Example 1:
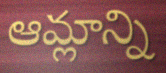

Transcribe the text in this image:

ఆమ్లాన్ని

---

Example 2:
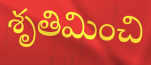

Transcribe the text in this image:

శృతిమించి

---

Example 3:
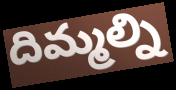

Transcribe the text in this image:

దిమ్మల్ని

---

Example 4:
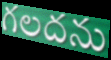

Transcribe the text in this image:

గలదను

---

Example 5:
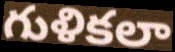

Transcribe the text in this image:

గుళికలా